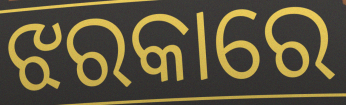
ଝରକାରେ